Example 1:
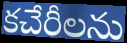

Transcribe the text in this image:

కచేరీలను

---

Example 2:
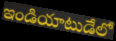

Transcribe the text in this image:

ఇండియాటుడేలో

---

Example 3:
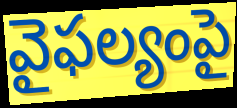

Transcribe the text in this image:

వైఫల్యంపై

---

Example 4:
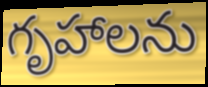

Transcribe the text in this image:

గృహాలను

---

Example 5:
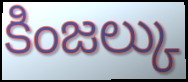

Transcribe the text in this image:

కింజల్కు